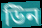
উিন